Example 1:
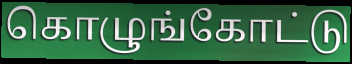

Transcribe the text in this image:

கொழுங்கோட்டு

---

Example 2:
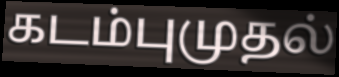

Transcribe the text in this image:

கடம்புமுதல்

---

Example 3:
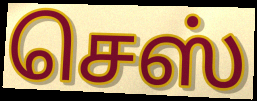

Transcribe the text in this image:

செஸ்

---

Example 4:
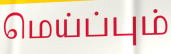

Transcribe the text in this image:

மெய்ப்பும்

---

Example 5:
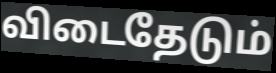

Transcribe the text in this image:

விடைதேடும்